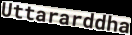
Uttararddha